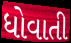
ધોવાતી